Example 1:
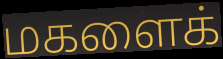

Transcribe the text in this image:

மகளைக்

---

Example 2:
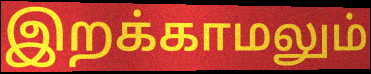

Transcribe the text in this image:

இறக்காமலும்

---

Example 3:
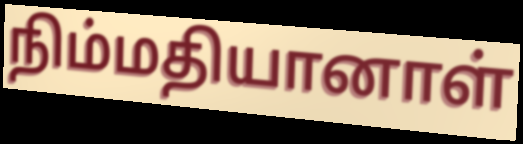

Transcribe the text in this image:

நிம்மதியானாள்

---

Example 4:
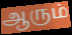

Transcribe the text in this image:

ஆரும்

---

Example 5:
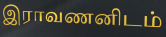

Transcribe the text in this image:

இராவணனிடம்